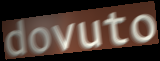
dovuto